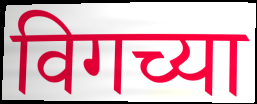
विगच्या